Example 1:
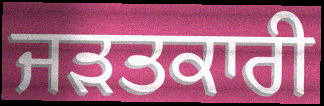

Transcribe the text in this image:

ਜੜਤਕਾਰੀ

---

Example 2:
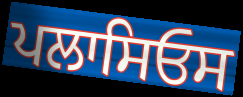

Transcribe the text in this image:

ਪਲਾਸਿਓਸ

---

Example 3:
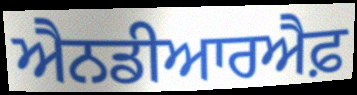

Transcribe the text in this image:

ਐਨਡੀਆਰਐਫ਼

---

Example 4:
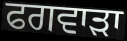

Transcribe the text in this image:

ਫਗਵਾੜਾ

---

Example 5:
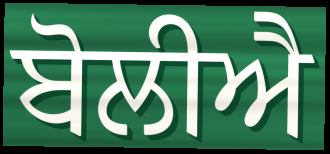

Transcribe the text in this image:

ਬੋਲੀਐ